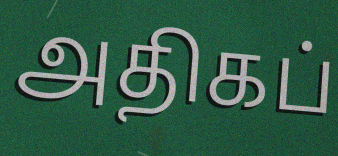
அதிகப்